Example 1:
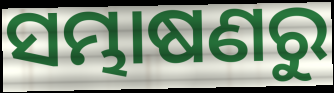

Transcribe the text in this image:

ସମ୍ଭାଷଣରୁ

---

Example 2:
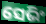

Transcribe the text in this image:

ସେଭିଂ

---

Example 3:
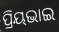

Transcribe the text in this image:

ପ୍ରିୟଭାଇ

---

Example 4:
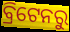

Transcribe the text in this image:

ବ୍ରିଟେନରୁ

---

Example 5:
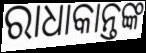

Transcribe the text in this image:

ରାଧାକାନ୍ତଙ୍କ